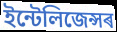
ইন্টেলিজেন্সৰ